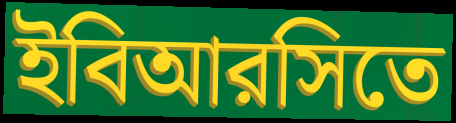
ইবিআরসিতে